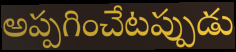
అప్పగించేటప్పుడు